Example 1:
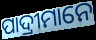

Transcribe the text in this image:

ପାଦ୍ରୀମାନେ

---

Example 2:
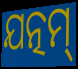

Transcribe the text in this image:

ଯତ୍ନମ୍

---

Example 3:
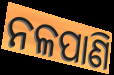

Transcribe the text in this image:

ନଳପାଣି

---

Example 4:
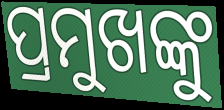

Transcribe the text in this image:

ପ୍ରମୁଖଙ୍କୁ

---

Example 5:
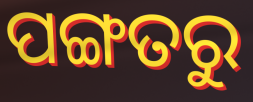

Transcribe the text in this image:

ପଙ୍ଗତରୁ